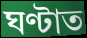
ঘণ্টাত